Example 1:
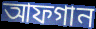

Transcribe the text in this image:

আফগান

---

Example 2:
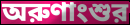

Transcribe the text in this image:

অরুণাংশুর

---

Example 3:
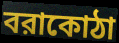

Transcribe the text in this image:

বরাকোঠা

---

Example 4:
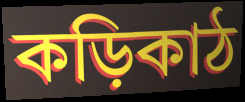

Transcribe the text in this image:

কড়িকাঠ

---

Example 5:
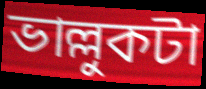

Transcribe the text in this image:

ভাল্লুকটা